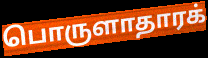
பொருளாதாரக்